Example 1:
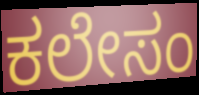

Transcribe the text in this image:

ಕಲೇಸಂ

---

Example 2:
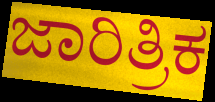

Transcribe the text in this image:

ಜಾರಿತ್ರಿಕ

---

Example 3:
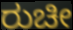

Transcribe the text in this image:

ರುಚೀ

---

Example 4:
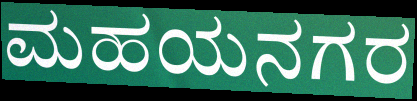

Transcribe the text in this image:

ಮಹಯನಗರ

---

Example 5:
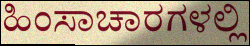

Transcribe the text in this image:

ಹಿಂಸಾಚಾರಗಳಲ್ಲಿ